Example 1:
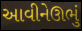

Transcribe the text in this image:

આવીનેઊભું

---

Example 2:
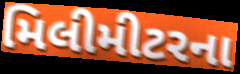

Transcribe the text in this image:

મિલીમીટરના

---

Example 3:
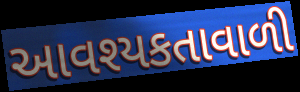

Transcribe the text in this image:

આવશ્યકતાવાળી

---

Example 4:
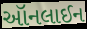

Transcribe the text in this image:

ઑનલાઈન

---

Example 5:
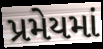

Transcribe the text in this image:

પ્રમેયમાં